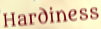
Hardiness